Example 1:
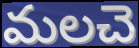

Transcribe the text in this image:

మలచె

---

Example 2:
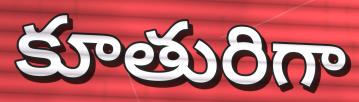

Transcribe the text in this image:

కూతురిగా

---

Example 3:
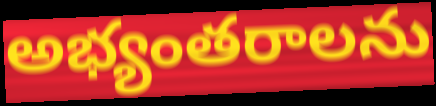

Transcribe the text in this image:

అభ్యంతరాలను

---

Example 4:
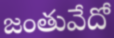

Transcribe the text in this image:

జంతువేదో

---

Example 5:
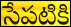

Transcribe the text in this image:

సేపటికి